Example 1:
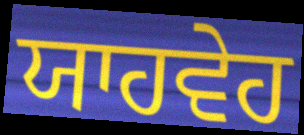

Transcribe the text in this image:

ਯਾਹਵੇਹ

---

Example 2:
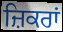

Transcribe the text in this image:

ਜ਼ਿਕਰਾਂ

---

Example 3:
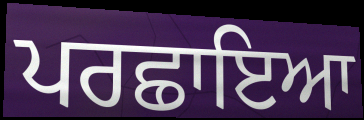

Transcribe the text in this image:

ਪਰਛਾਇਆ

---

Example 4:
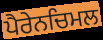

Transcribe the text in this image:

ਪੈਰੇਨਚਿਮਲ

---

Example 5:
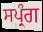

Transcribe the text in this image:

ਸਪ੍ਰੰਗ